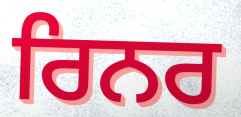
ਰਿਨਰ